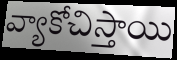
వ్యాకోచిస్తాయి